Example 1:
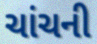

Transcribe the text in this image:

ચાંચની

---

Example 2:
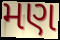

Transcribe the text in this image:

મણ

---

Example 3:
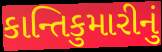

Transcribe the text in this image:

કાન્તિકુમારીનું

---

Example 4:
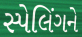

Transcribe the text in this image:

સ્પેલિંગને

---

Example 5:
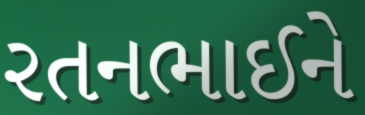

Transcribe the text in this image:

રતનભાઈને